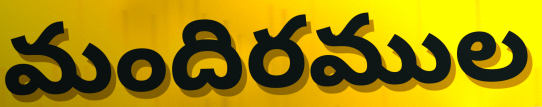
మందిరముల